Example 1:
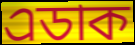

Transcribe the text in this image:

এডাক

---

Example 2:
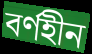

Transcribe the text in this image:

বৰ্ণহীন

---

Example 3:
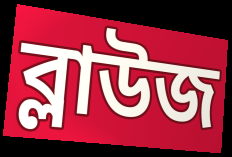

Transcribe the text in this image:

ব্লাউজ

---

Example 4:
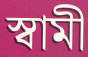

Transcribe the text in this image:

স্বামী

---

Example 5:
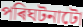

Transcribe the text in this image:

পৰিঘটনাটো